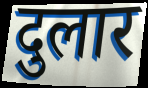
दुलार